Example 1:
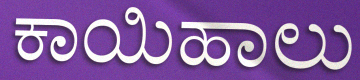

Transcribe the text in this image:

ಕಾಯಿಹಾಲು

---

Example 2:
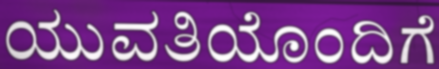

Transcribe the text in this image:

ಯುವತಿಯೊಂದಿಗೆ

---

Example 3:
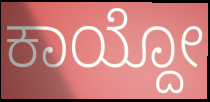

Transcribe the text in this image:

ಕಾಯ್ದೋ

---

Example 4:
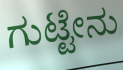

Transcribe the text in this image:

ಗುಟ್ಟೇನು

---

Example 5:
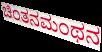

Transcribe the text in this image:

ಚಿಂತನಮಂಥನ